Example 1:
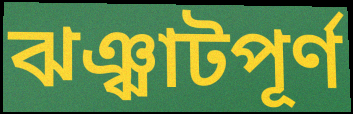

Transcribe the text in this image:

ঝঞ্ঝাটপূর্ণ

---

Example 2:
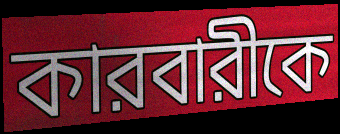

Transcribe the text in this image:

কারবারীকে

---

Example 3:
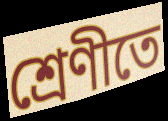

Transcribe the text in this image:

শ্রেণীতে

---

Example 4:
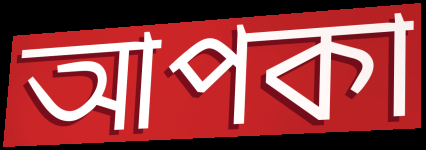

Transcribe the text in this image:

আপকা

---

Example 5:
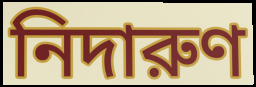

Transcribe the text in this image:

নিদারুণ